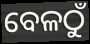
ବେଳଠୁଁ